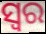
ସ୍ବର